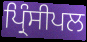
ਪ੍ਰਿੰਸੀਪਲ